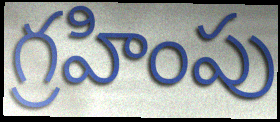
గ్రహింపు